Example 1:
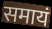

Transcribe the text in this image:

समायं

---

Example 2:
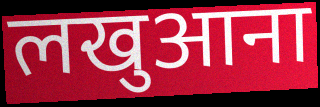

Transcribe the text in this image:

लखुआना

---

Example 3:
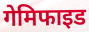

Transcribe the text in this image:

गेमिफाइड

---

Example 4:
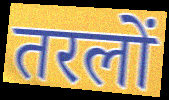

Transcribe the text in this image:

तरलों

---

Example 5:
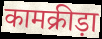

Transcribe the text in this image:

कामक्रीड़ा